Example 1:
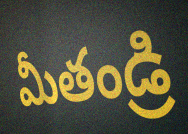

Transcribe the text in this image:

మీతండ్రి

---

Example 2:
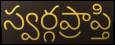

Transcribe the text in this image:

స్వర్గప్రాప్తి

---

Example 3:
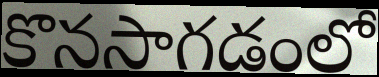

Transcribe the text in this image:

కొనసాగడంలో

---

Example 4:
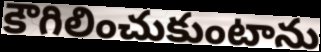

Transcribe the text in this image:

కౌగిలించుకుంటాను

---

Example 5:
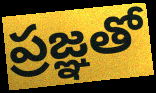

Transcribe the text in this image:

ప్రజ్ఞతో